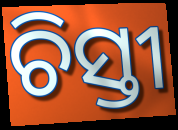
ଚିସ୍ତୀ